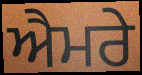
ਐਮਰੇ